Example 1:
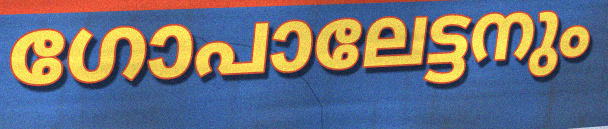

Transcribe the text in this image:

ഗോപാലേട്ടനും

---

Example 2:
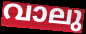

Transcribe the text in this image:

വാലു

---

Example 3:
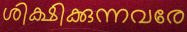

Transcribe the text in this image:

ശിക്ഷിക്കുന്നവരേ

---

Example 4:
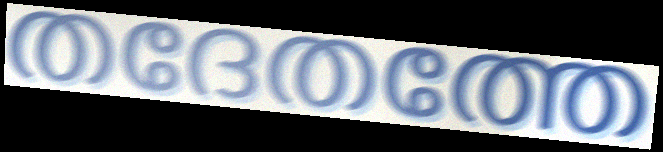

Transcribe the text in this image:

തദേതത്തേ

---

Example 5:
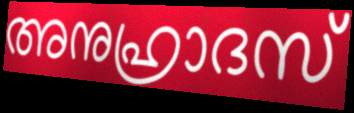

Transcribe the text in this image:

അനുഹ്രാദസ്